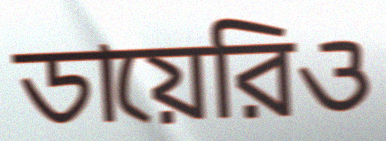
ডায়েরিও